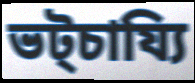
ভট্চায্যি